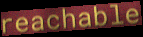
reachable